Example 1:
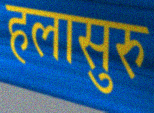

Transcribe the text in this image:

हलासुरु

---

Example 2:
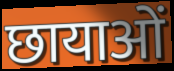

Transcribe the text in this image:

छायाओं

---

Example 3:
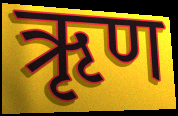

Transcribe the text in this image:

ऋृण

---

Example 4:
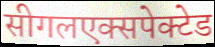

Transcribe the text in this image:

सीगलएक्सपेक्टेड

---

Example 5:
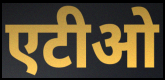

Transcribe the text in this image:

एटीओ